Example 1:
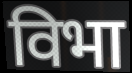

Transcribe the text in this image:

विभा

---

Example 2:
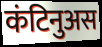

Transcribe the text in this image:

कंटिनुअस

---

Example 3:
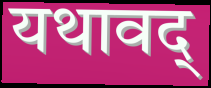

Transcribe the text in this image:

यथावद्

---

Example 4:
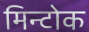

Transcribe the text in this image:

मिन्टोक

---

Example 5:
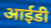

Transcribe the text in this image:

आईडी